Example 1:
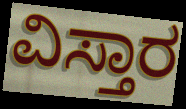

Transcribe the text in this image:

ವಿಸ್ತಾರ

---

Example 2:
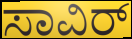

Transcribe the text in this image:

ಸಾವಿರ್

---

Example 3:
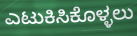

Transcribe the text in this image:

ಎಟುಕಿಸಿಕೊಳ್ಳಲು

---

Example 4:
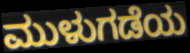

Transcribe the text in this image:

ಮುಳುಗಡೆಯ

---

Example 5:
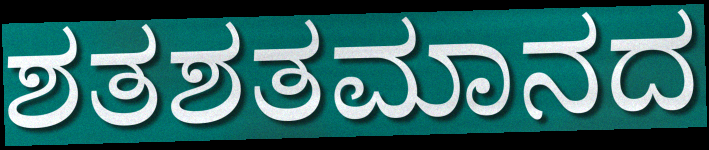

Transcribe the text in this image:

ಶತಶತಮಾನದ